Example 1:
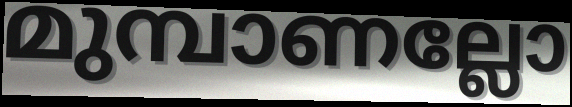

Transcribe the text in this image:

മുമ്പാണല്ലോ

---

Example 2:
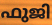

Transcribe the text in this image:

ഫുജി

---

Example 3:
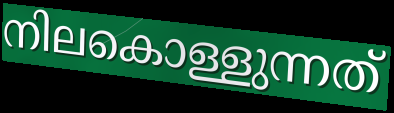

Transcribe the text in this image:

നിലകൊള്ളുന്നത്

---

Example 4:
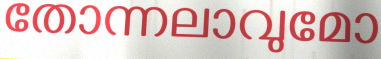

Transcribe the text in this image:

തോന്നലാവുമോ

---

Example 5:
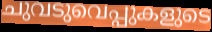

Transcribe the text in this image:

ചുവടുവെപ്പുകളുടെ